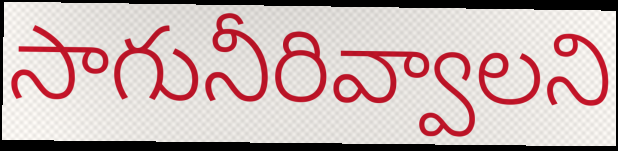
సాగునీరివ్వాలని